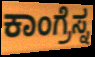
ಕಾಂಗ್ರೆಸ್ನ